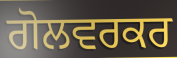
ਗੋਲਵਰਕਰ